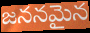
జననమైన